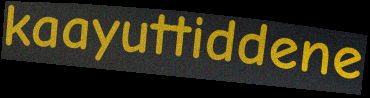
kaayuttiddene